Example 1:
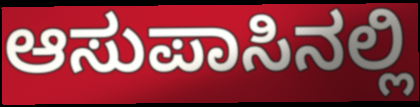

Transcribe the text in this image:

ಆಸುಪಾಸಿನಲ್ಲಿ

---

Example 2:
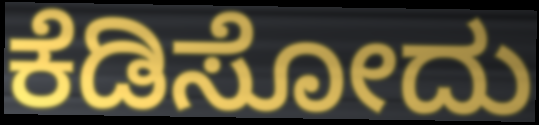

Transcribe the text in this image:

ಕೆಡಿಸೋದು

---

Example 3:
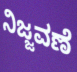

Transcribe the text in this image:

ನಿಜ್ಜವಣೆ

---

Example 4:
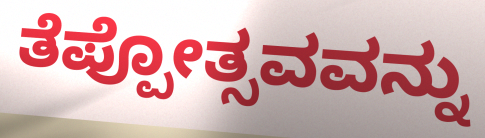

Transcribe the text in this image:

ತೆಪ್ಪೋತ್ಸವವನ್ನು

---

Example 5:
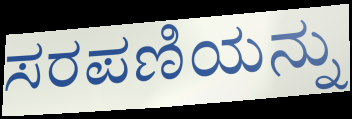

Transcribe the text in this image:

ಸರಪಣಿಯನ್ನು